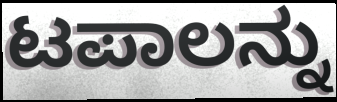
ಟಪಾಲನ್ನು